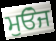
ਮੁਓੋਜ